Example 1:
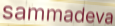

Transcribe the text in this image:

sammadeva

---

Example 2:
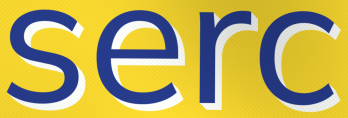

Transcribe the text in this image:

serc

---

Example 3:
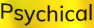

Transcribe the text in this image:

Psychical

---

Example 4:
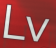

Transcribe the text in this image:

Lv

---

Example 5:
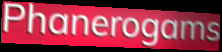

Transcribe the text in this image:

Phanerogams